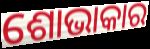
ଶୋଭାକାର